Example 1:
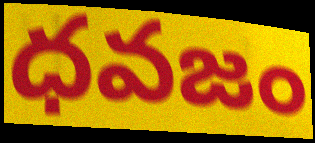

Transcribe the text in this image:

ధవజం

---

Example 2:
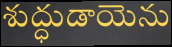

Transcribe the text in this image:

శుద్ధుడాయెను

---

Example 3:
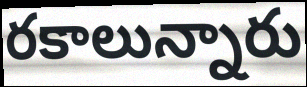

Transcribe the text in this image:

రకాలున్నారు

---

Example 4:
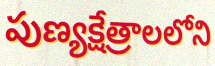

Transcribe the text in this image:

పుణ్యక్షేత్రాలలోని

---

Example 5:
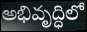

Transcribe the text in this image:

అభివృద్ధిలో